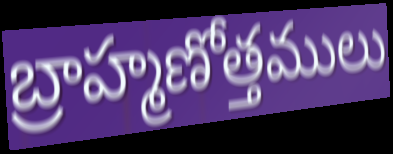
బ్రాహ్మణోత్తములు